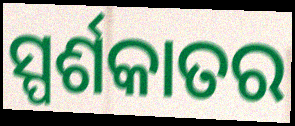
ସ୍ପର୍ଶକାତର